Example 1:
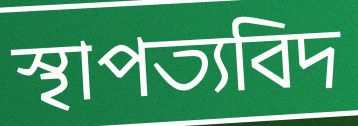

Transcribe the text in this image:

স্থাপত্যবিদ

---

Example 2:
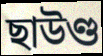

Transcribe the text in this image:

ছাউণ্ড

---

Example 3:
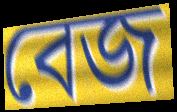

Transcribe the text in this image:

বেজ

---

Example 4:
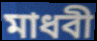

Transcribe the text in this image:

মাধবী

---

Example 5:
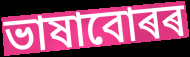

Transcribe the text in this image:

ভাষাবোৰৰ